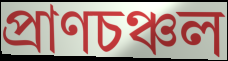
প্রাণচঞ্চল